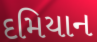
દમિયાન